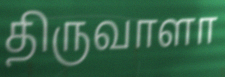
திருவாளா